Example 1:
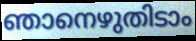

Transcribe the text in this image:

ഞാനെഴുതിടാം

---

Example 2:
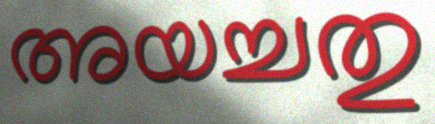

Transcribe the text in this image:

അയച്ചതു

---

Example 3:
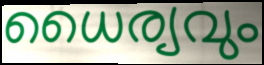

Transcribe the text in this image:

ധൈര്യവും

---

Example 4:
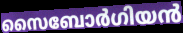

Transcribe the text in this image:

സൈബോർഗിയൻ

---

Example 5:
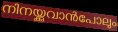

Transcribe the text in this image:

നിനയ്ക്കുവാൻപോലും